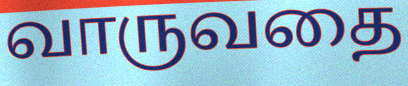
வாருவதை